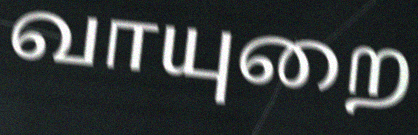
வாயுறை